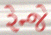
રેન્જે